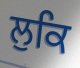
ਲੁਕਿ